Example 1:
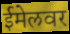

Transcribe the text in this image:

ईमेलवर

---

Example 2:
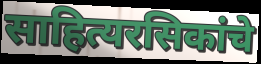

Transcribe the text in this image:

साहित्यरसिकांचे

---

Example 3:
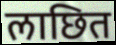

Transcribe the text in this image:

लाछित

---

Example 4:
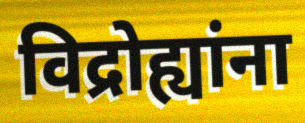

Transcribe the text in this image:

विद्रोह्यांना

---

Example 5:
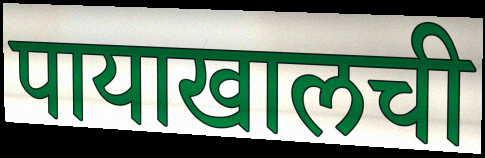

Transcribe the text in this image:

पायाखालची